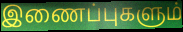
இணைப்புகளும்